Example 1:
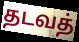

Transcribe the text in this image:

தடவத்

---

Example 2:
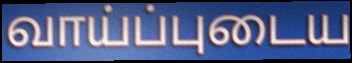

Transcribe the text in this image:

வாய்ப்புடைய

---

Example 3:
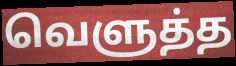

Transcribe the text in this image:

வெளுத்த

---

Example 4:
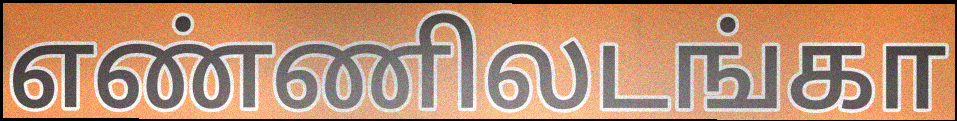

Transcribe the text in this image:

எண்ணிலடங்கா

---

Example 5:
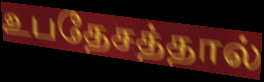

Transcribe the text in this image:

உபதேசத்தால்